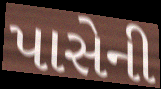
પાસેની